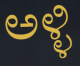
ಅಳ್ಳಿ